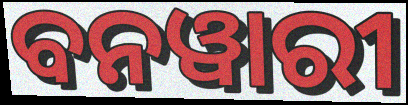
ବନୱାରୀ